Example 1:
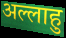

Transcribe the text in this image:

अल्लाहु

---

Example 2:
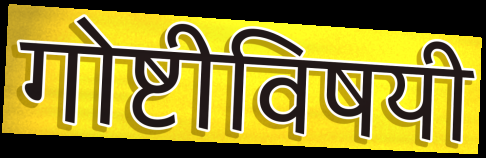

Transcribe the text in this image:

गोष्टीविषयी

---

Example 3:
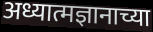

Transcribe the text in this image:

अध्यात्मज्ञानाच्या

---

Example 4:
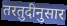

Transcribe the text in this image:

तरतुदीनुसार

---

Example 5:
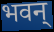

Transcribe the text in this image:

भवन्